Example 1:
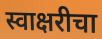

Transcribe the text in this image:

स्वाक्षरीचा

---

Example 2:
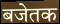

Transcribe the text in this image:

बजेतक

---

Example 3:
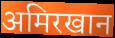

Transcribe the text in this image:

अमिरखान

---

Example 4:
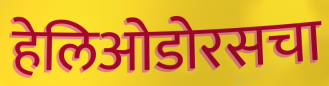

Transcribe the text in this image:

हेलिओडोरसचा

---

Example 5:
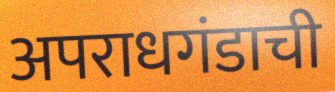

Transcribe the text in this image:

अपराधगंडाची